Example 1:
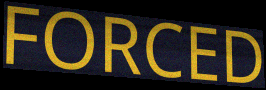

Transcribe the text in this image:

FORCED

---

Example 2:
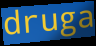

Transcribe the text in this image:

druga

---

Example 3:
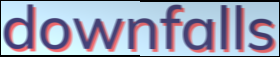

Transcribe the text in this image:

downfalls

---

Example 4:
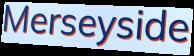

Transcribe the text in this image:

Merseyside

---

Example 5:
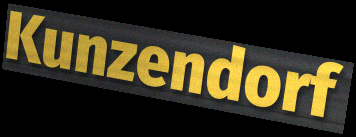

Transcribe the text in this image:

Kunzendorf